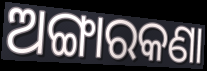
ଅଙ୍ଗାରକଣା